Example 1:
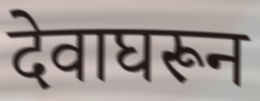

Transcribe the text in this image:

देवाघरून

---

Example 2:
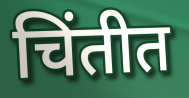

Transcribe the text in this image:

चिंतीत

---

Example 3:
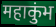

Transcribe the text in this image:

महाकुंभ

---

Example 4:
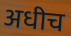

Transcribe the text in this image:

अधीच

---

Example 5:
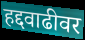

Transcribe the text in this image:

हद्दवाढीवर